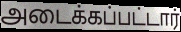
அடைக்கப்பட்டார்